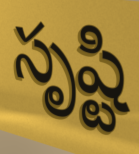
సృష్టి